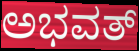
ಅಭವತ್